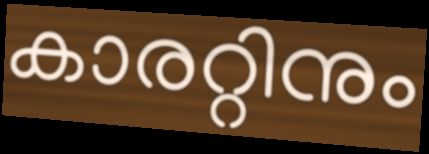
കാരറ്റിനും